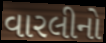
વારલીનો